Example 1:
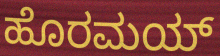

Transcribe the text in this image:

ಹೊರಮಯ್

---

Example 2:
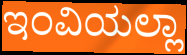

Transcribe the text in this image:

ಇಂವಿಯಲ್ಲಾ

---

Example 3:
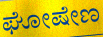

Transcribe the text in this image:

ಘೋಷೇಣ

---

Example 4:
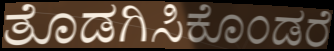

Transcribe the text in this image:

ತೊಡಗಿಸಿಕೊಂಡರೆ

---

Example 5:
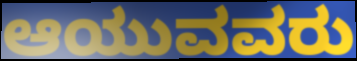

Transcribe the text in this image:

ಆಯುವವರು